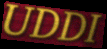
UDDI